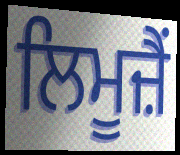
ਲਿਮੂਜ਼ੈਂ